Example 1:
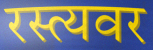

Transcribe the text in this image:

रस्त्यवर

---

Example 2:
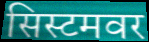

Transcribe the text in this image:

सिस्टमवर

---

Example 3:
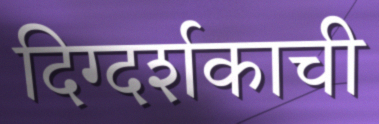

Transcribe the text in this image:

दिग्दर्शकाची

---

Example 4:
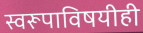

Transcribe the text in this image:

स्वरूपाविषयीही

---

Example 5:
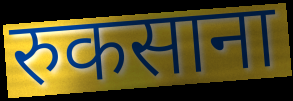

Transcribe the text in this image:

रुकसाना